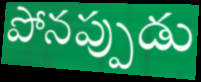
పోనప్పుడు